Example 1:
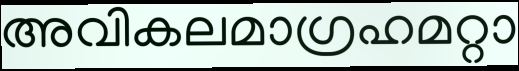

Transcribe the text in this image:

അവികലമാഗ്രഹമറ്റാ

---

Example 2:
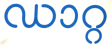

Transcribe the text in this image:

ഡാറ്റ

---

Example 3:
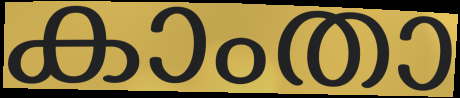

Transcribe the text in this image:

കാംതാ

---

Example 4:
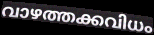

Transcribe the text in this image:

വാഴത്തക്കവിധം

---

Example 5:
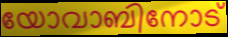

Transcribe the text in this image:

യോവാബിനോട്